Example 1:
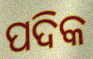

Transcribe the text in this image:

ପଦିକ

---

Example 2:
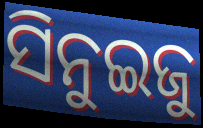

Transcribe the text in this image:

ସିନୁଇଜୁ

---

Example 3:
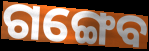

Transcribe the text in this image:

ଗଙ୍ଗେବ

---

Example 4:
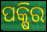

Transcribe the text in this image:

ପକ୍ଷିର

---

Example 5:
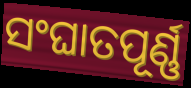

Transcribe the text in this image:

ସଂଘାତପୂର୍ଣ୍ଣ